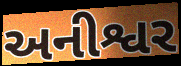
અનીશ્વર